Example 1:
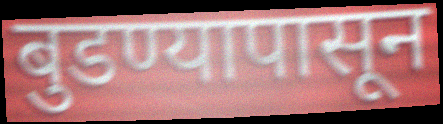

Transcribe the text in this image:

बुडण्यापासून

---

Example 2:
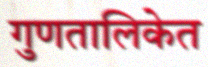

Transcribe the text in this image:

गुणतालिकेत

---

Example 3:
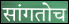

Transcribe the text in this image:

सांगतोच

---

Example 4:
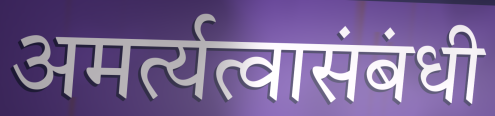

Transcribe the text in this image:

अमर्त्यत्वासंबंधी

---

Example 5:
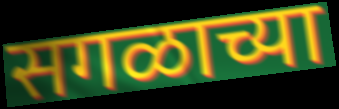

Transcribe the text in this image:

सगळाच्या